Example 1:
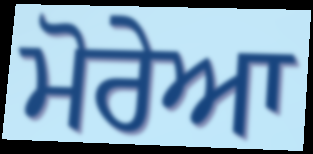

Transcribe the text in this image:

ਮੋਰੇਆ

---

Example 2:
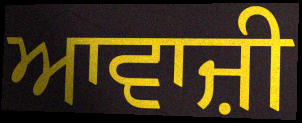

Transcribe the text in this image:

ਆਵਾਜ਼ੀ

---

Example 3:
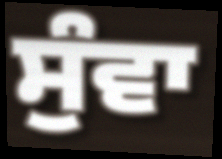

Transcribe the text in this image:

ਸੁੰਵਾ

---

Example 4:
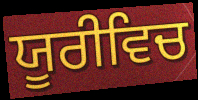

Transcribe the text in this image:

ਯੂਰੀਵਿਚ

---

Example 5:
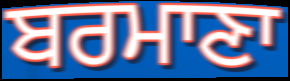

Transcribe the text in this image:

ਬਰਮਾਣਾ